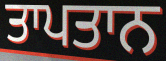
ਤਾਪਤਾਨ